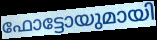
ഫോട്ടോയുമായി